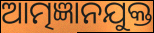
ଆତ୍ମଜ୍ଞାନଯୁକ୍ତ